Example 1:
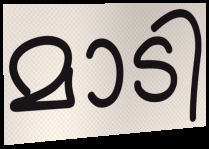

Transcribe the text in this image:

മാടി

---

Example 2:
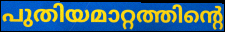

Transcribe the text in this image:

പുതിയമാറ്റത്തിന്റെ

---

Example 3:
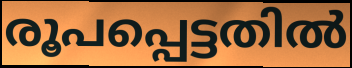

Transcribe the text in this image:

രൂപപ്പെട്ടതിൽ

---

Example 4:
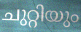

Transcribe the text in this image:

ചുറ്റിയും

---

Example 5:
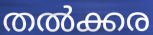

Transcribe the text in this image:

തൽക്കര